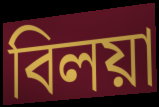
বিলয়া